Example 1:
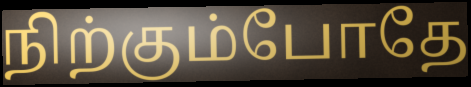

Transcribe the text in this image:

நிற்கும்போதே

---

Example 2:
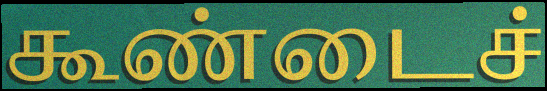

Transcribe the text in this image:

கூண்டைச்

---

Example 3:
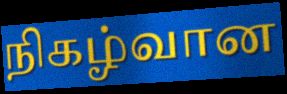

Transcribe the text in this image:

நிகழ்வான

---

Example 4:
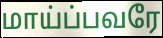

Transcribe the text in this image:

மாய்ப்பவரே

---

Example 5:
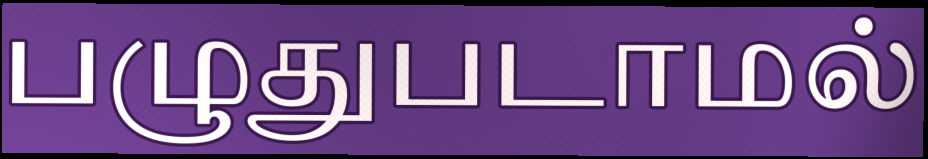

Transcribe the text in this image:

பழுதுபடாமல்